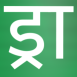
ड्रा